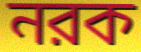
নরক